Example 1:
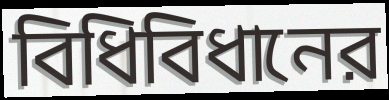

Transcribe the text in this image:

বিধিবিধানের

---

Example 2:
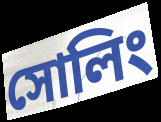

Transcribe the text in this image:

সোলিং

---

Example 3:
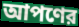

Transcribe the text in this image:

আপণের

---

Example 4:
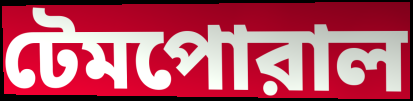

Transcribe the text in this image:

টেমপোরাল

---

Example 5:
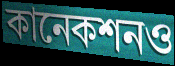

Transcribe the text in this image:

কানেকশনও